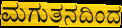
ಮಗುತನದಿಂದ